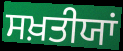
ਸਖ਼ਤੀਯਾਂ